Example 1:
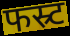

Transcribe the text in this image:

फस्र्ट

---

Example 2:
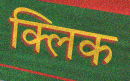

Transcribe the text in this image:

क्लिक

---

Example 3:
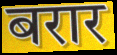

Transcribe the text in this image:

बरार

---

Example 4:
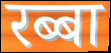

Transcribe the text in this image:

रब्बा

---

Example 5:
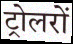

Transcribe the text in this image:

ट्रोलरों